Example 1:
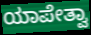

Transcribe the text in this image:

ಯಾಪೇತ್ವಾ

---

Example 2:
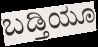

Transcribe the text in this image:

ಬಡ್ತಿಯೂ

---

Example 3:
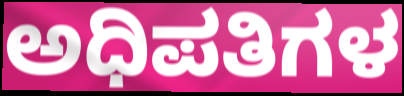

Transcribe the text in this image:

ಅಧಿಪತಿಗಳ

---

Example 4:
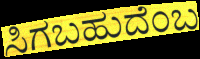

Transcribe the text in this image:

ಸಿಗಬಹುದೆಂಬ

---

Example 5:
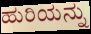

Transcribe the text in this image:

ಹುರಿಯನ್ನು